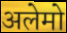
अलेमो